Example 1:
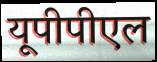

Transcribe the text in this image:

यूपीपीएल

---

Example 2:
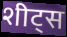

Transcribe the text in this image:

शीट्स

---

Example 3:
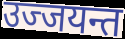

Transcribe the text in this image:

उज्जयन्त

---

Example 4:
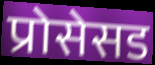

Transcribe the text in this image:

प्रोसेसड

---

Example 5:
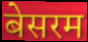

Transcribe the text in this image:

बेसरम